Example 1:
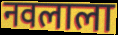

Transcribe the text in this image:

नवलाला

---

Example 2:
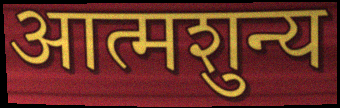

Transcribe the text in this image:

आत्मशुन्य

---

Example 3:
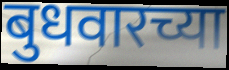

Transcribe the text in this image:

बुधवारच्या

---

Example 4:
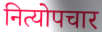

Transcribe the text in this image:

नित्योपचार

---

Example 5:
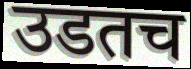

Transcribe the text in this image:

उडतच